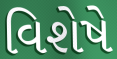
વિશેષે